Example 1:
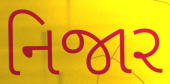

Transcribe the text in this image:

નિજાર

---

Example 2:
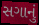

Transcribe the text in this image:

સગાનું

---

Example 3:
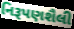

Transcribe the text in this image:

નિરૂપણશૈલી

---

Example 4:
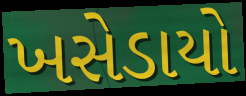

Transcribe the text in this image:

ખસેડાયો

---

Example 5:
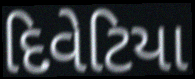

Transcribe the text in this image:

દિવેટિયા